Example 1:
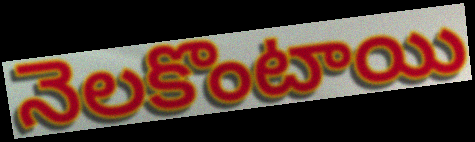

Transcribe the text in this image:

నెలకొంటాయి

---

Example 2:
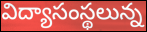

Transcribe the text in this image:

విద్యాసంస్థలున్న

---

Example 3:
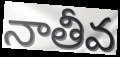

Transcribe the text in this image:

నాతీవ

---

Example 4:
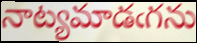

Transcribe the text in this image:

నాట్యమాడఁగను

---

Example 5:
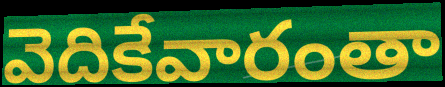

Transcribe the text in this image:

వెదికేవారంతా